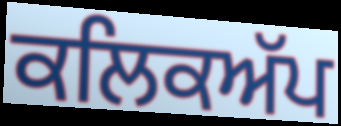
ਕਲਿਕਅੱਪ